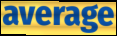
average